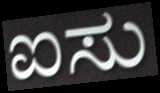
ಐಸು